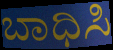
ಬಾಧಿಸಿ